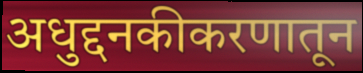
अधुद्दनकीकरणातून